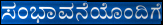
ಸಂಭಾವನೆಯೊಂದಿಗೆ